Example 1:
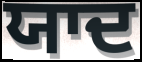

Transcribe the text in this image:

ਯਾਦ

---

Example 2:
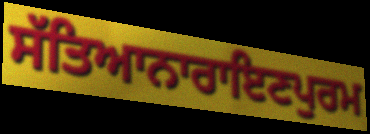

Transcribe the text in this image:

ਸੱਤਿਆਨਾਰਾਇਣਪੁਰਮ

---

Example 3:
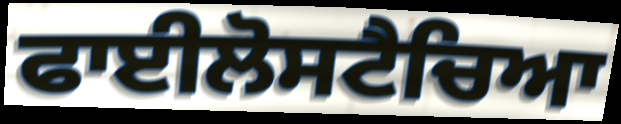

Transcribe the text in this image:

ਫਾਈਲੋਸਟੈਚਿਆ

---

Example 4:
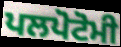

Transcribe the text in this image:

ਪਲਪੋਟੋਮੀ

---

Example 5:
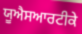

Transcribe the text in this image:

ਯੂਐਸਆਰਟੀਕੇ